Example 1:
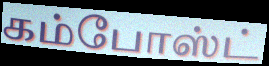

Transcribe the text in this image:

கம்போஸ்ட்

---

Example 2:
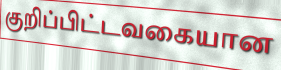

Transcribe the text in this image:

குறிப்பிட்டவகையான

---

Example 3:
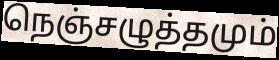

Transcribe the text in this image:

நெஞ்சழுத்தமும்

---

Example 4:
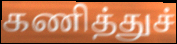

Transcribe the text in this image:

கணித்துச்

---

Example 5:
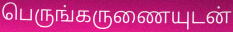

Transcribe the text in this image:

பெருங்கருணையுடன்